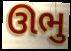
ઊભુ